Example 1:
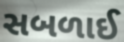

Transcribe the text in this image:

સબળાઈ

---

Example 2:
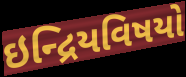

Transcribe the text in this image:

ઇન્દ્રિયવિષયો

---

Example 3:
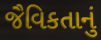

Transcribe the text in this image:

જૈવિકતાનું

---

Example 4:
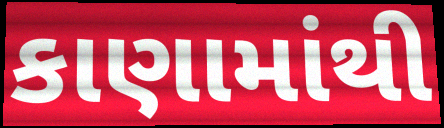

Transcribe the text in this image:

કાણામાંથી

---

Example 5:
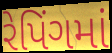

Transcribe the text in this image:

રેપિંગમાં